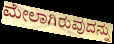
ಮೇಲಾಗಿರುವುದನ್ನು